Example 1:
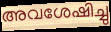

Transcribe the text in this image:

അവശേഷിച്ചു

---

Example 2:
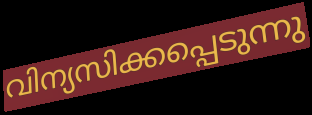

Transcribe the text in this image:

വിന്യസിക്കപ്പെടുന്നു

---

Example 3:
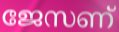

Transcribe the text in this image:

ജേസണ്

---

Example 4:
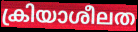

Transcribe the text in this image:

ക്രിയാശീലത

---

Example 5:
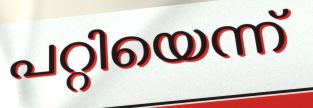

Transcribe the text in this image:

പറ്റിയെന്ന്